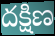
దక్షిణ